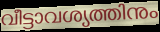
വീട്ടാവശ്യത്തിനും